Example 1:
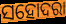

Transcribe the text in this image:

ସହୋଦରା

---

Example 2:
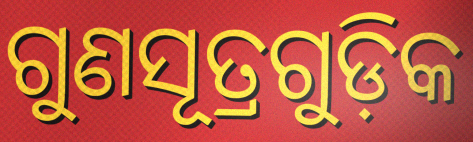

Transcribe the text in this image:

ଗୁଣସୂତ୍ରଗୁଡ଼ିକ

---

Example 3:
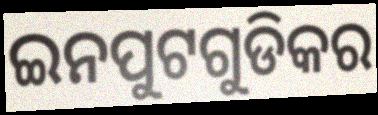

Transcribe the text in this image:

ଇନପୁଟଗୁଡିକର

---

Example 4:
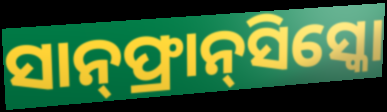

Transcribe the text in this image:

ସାନ୍‌ଫ୍ରାନ୍‌ସିସ୍କୋ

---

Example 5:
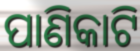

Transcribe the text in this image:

ପାଣିକାଟି